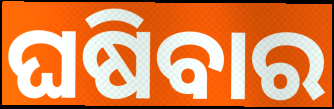
ଘଷିବାର